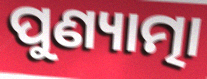
ପୁଣ୍ୟାତ୍ମା